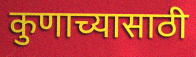
कुणाच्यासाठी